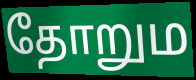
தோறும